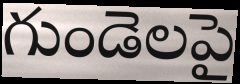
గుండెలపై